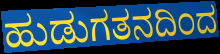
ಹುಡುಗತನದಿಂದ